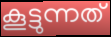
കൂട്ടുന്നത്